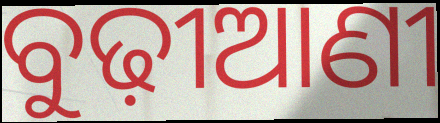
ବୁଢ଼ୀଆଣୀ